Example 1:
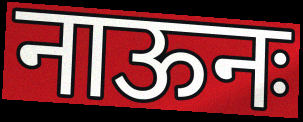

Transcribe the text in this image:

नाऊनः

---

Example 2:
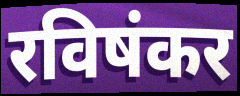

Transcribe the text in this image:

रविषंकर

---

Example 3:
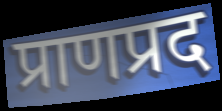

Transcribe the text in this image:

प्राणप्रद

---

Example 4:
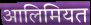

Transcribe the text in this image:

आलिमियत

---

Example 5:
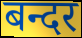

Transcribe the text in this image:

बन्दर